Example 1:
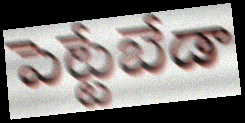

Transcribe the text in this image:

పెట్టేబేడా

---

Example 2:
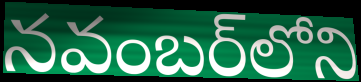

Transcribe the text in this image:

నవంబర్‌లోని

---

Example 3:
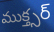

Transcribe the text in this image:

ముక్త్సర్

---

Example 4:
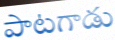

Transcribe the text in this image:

పాటగాడు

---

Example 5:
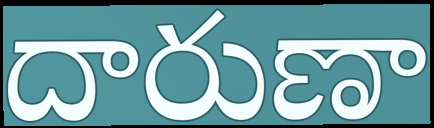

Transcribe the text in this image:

దారుణా